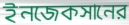
ইনজেকসানের